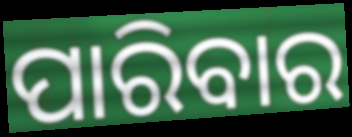
ପାରିବାର